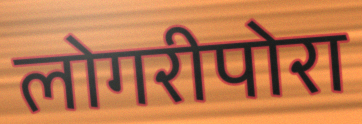
लोगरीपोरा